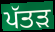
ਪੱਤਡ਼